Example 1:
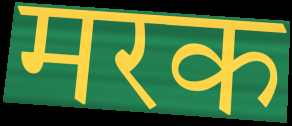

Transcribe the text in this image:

मरक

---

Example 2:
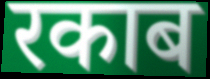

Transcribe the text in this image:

रकाब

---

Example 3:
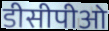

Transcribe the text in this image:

डीसीपीओ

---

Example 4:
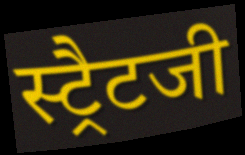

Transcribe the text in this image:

स्‍ट्रैटजी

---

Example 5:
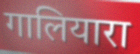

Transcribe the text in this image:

गालियारा